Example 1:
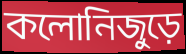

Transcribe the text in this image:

কলোনিজুড়ে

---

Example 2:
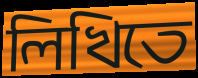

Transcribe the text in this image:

লিখিতে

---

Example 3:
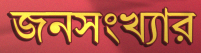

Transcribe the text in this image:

জনসংখ্যার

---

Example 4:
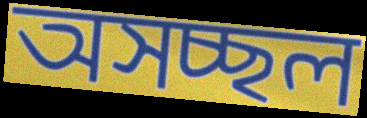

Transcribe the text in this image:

অসচ্ছল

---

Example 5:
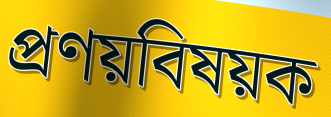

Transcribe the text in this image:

প্রণয়বিষয়ক